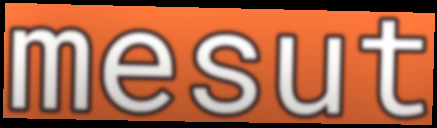
mesut